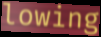
lowing